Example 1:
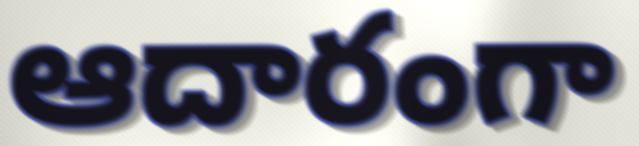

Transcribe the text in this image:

ఆదారంగా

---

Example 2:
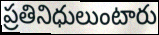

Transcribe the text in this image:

ప్రతినిధులుంటారు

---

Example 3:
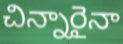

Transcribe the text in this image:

చిన్నారైనా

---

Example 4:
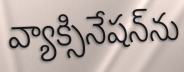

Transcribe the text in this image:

వ్యాక్సినేషన్‌ను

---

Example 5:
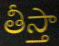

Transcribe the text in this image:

తీస్తా